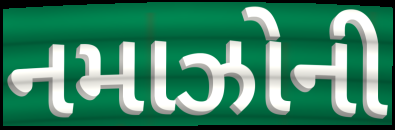
નમાઝોની